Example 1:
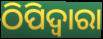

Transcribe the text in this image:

ଠିପିଦ୍ଵାରା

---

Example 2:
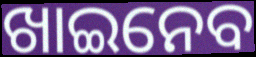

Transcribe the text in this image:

ଖାଇନେବ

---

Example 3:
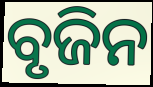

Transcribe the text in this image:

ବୃଜିନ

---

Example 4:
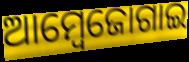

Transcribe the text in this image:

ଆମ୍ବେଜୋଗାଇ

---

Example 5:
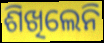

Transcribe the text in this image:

ଶିଖିଲେନି